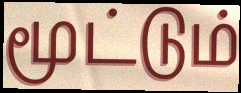
மூட்டும்